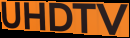
UHDTV